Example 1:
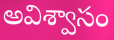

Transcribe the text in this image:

అవిశ్వాసం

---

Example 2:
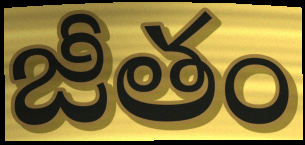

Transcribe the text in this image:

జీతం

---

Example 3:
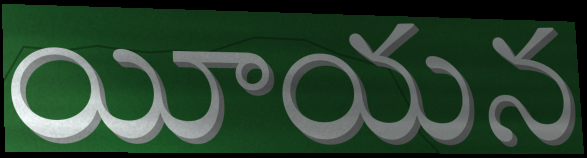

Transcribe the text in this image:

యీయన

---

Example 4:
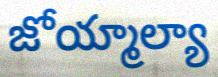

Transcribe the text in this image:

జోయ్మాల్యా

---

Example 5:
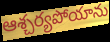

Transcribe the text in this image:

ఆశ్చర్యపోయాను